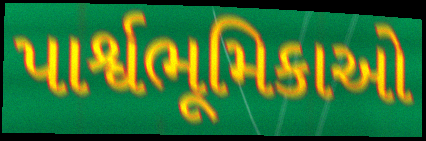
પાર્શ્વભૂમિકાઓ